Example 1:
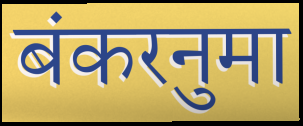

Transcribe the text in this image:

बंकरनुमा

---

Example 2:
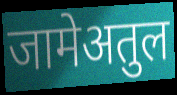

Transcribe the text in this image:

जामेअतुल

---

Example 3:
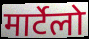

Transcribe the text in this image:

मार्टेलो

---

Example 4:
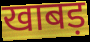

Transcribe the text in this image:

खाबड़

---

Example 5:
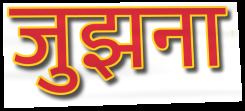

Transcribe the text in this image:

जुझना